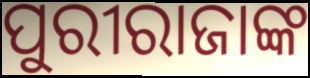
ପୁରୀରାଜାଙ୍କ